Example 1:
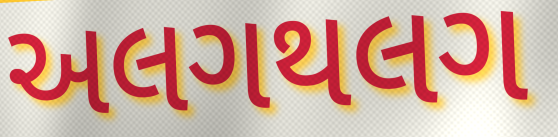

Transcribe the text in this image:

અલગથલગ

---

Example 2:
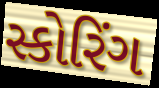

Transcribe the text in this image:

સ્કોરિંગ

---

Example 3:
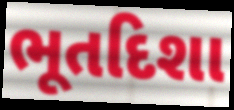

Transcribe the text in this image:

ભૂતદિશા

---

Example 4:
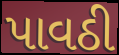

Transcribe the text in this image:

પાવઠી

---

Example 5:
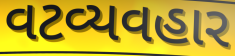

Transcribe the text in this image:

વટવ્યવહાર